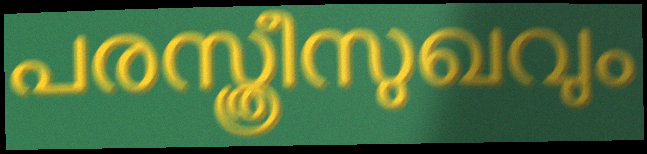
പരസ്ത്രീസുഖവും